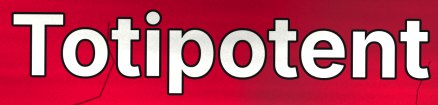
Totipotent